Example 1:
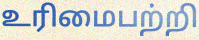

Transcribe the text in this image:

உரிமைபற்றி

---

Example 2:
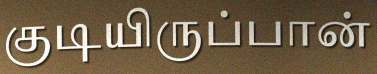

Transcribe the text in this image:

குடியிருப்பான்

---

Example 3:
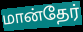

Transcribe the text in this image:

மான்தேர்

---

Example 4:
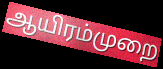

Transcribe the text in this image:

ஆயிரம்முறை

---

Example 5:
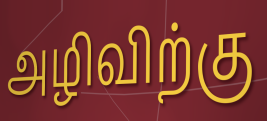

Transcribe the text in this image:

அழிவிற்கு